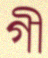
গী